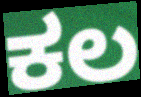
ಕಲ